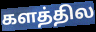
களத்தில